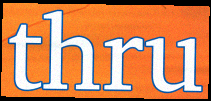
thru